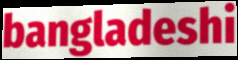
bangladeshi